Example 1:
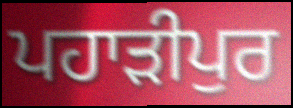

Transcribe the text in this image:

ਪਹਾੜੀਪੁਰ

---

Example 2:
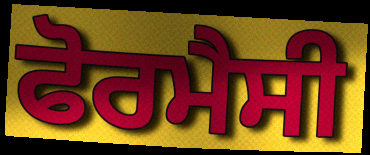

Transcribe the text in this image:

ਫੋਰਮੈਸੀ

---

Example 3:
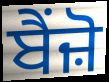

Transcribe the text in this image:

ਬੈਂਜ਼ੋ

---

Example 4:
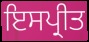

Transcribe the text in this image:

ਇਸਪ੍ਰੀਤ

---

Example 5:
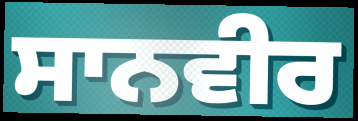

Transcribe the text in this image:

ਸਾਨਵੀਰ